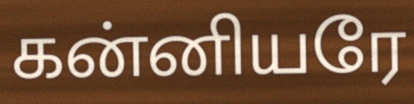
கன்னியரே